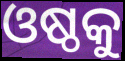
ଓଷ୍ଠକୁ